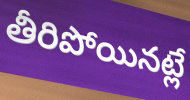
తీరిపోయినట్లే